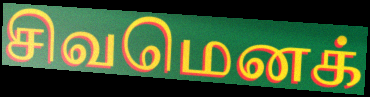
சிவமெனக்